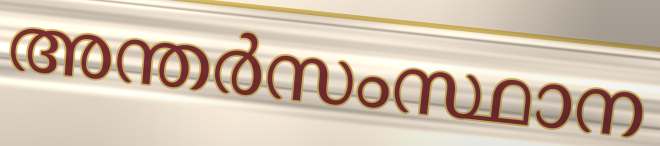
അന്തർസംസ്ഥാന